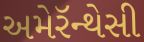
અમેરૅન્થેસી